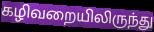
கழிவறையிலிருந்து